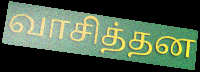
வாசித்தன